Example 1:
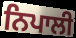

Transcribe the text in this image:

ਨਿਪਾਲੀ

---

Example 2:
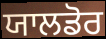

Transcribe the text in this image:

ਯਾਲਡੋਰ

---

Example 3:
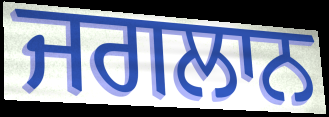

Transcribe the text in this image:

ਜਗਲਾਨ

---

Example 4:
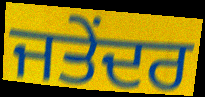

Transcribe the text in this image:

ਜਤੇਂਦਰ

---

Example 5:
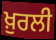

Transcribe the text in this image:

ਖ਼ੁਰਲੀ